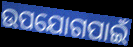
ଉପଯୋଗପାଇଁ